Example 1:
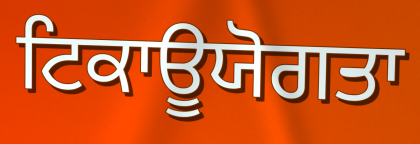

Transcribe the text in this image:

ਟਿਕਾਊਯੋਗਤਾ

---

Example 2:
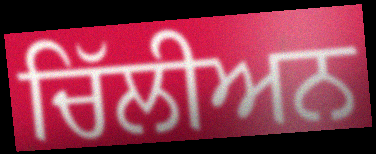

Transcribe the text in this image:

ਚਿੱਲੀਅਨ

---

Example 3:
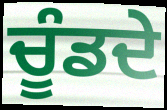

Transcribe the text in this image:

ਚੂੰਡਦੇ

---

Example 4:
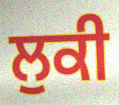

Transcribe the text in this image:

ਲੁਕੀ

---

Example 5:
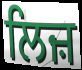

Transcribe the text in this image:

ਲਿਜ਼